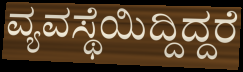
ವ್ಯವಸ್ಥೆಯಿದ್ದಿದ್ದರೆ